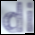
di